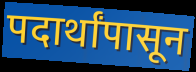
पदार्थांपासून